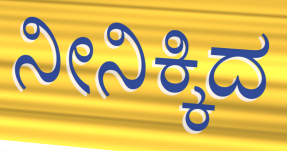
ನೀನಿಕ್ಕಿದ